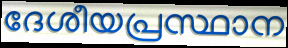
ദേശീയപ്രസ്ഥാന